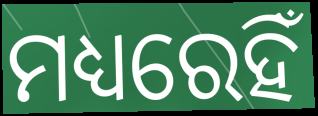
ମଧ୍ୟରେହିଁ